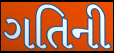
ગતિની